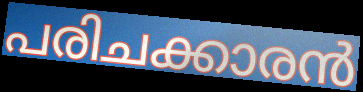
പരിചക്കാരൻ